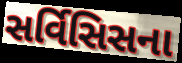
સર્વિસિસના